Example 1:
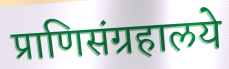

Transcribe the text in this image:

प्राणिसंग्रहालये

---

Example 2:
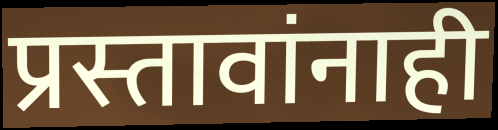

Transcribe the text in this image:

प्रस्तावांनाही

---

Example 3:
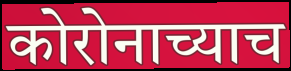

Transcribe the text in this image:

कोरोनाच्याच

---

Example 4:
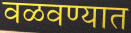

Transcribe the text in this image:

वळवण्यात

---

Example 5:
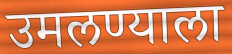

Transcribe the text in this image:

उमलण्याला